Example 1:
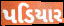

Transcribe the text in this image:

પડિયાર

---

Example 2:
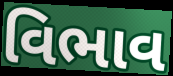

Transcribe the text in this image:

વિભાવ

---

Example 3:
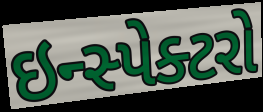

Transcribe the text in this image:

ઇન્સ્પેક્ટરો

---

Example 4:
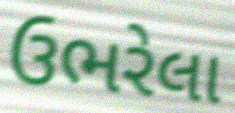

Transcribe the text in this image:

ઉભરેલા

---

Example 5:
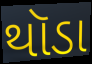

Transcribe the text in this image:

થૉડા